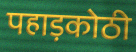
पहाड़कोठी